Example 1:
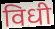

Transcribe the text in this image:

विधी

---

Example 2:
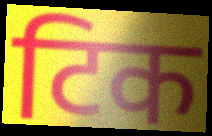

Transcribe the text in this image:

टिक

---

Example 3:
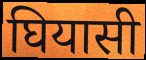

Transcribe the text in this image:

घियासी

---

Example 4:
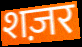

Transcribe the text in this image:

शज़र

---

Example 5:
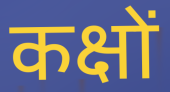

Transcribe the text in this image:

कक्षों